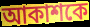
আকাশকে